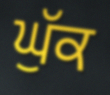
ਘੁੱਕ